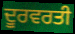
ਦੂਰਵਰਤੀ